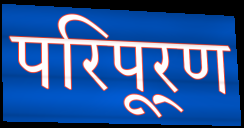
परिपूर्ण